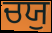
ਚਯੁ